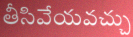
తీసివేయవచ్చు